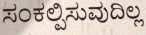
ಸಂಕಲ್ಪಿಸುವುದಿಲ್ಲ